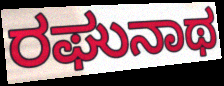
ರಘುನಾಥ